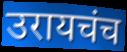
उरायचंच